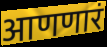
आणणारं